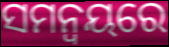
ସମନ୍ବୟରେ